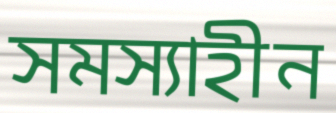
সমস্যাহীন